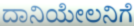
ದಾನಿಯೇಲನಿಗೆ